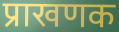
प्राखणक